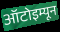
ऑटोइम्यून